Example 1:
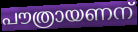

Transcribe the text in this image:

പൗത്രായണന്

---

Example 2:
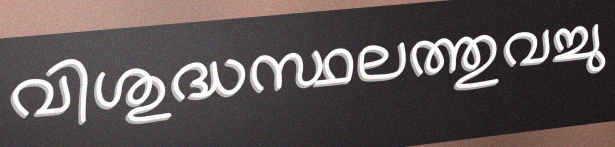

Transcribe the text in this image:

വിശുദ്ധസ്ഥലത്തുവച്ചു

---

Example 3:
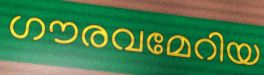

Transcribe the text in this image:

ഗൗരവമേറിയ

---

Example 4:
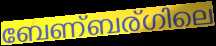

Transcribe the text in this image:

ബേണ്ബര്ഗിലെ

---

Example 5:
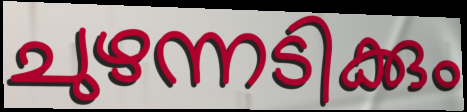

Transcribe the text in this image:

ചുഴന്നടിക്കും